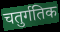
चतुर्गतिक